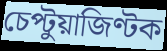
চেপ্টুয়াজিণ্টক